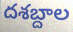
దశబ్దాల